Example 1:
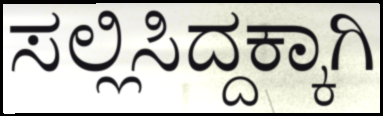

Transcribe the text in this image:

ಸಲ್ಲಿಸಿದ್ದಕ್ಕಾಗಿ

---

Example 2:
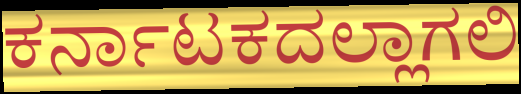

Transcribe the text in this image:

ಕರ್ನಾಟಕದಲ್ಲಾಗಲಿ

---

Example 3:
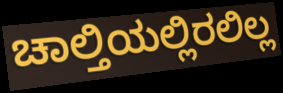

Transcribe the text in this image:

ಚಾಲ್ತಿಯಲ್ಲಿರಲಿಲ್ಲ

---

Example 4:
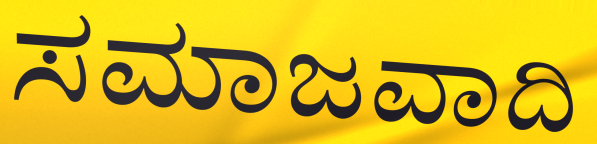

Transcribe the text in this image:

ಸಮಾಜವಾದಿ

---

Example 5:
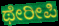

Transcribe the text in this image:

ಥೇರೀಪಿ